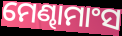
ମେଣ୍ଢାମାଂସ